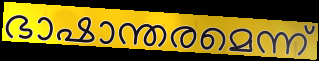
ഭാഷാന്തരമെന്ന്